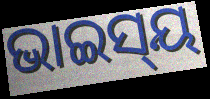
ଭାଇସ୍‌ୟ